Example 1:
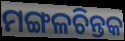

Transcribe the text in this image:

ମଙ୍ଗଳଚିନ୍ତକ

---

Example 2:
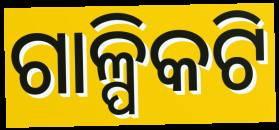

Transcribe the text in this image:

ଗାଳ୍ପିକଟି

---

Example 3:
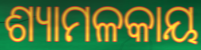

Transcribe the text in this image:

ଶ୍ୟାମଳକାୟ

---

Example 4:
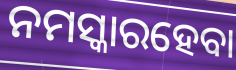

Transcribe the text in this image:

ନମସ୍କାରହେବା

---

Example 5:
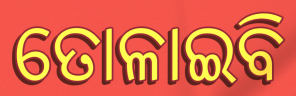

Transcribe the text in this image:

ତୋଳାଇବି